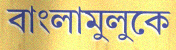
বাংলামুলুকে